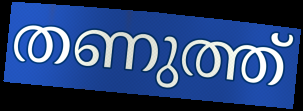
തണുത്ത്